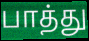
பாத்து